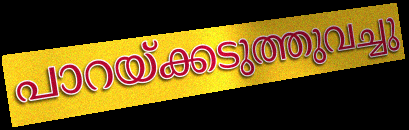
പാറയ്ക്കടുത്തുവച്ചു